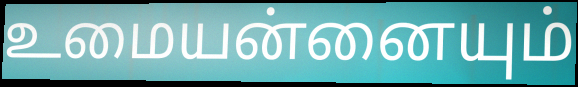
உமையன்னையும்